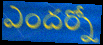
ఎందర్నో